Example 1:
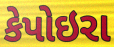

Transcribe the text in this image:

કેપોઇરા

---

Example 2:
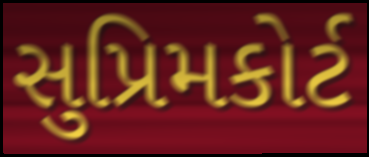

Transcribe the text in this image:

સુપ્રિમકોર્ટ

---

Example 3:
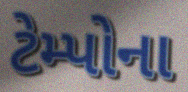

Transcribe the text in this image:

ટેમ્પોના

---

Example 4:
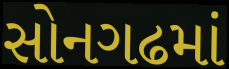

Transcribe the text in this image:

સોનગઢમાં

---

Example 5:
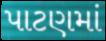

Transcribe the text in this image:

પાટણમાં